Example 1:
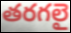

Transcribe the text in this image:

తరగలై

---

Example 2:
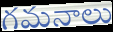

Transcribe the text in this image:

గమనాలు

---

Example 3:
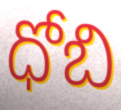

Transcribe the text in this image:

ధోబి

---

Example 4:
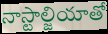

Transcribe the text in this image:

నాస్టాల్జియాతో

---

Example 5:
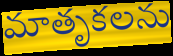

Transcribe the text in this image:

మాతృకలను